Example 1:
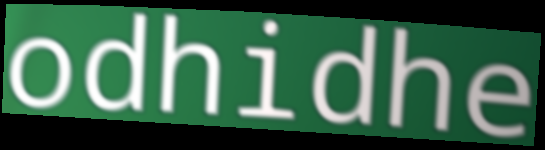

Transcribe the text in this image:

odhidhe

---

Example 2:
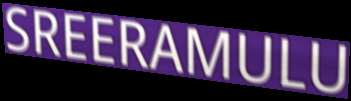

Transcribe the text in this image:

SREERAMULU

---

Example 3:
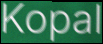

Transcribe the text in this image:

Kopal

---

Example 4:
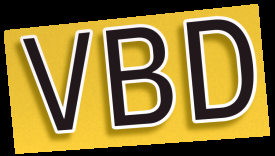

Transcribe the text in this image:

VBD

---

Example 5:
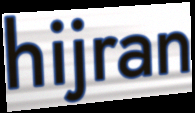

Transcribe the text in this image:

hijran